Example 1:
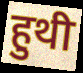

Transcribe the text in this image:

हुथी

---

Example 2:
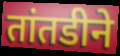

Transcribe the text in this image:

तांतडीने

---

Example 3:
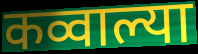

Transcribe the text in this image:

कव्वाल्या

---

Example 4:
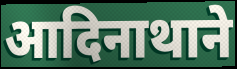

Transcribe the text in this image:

आदिनाथाने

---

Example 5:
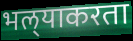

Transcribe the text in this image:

भल्याकरता